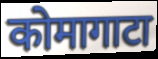
कोमागाटा